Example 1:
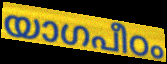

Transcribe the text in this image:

യാഗപീഠം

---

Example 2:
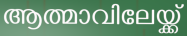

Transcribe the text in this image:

ആത്മാവിലേയ്ക്ക്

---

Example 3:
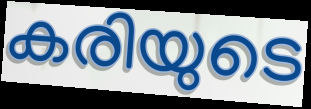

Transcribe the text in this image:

കരിയുടെ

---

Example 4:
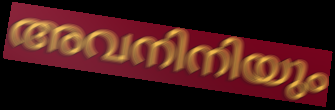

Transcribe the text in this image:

അവനിനിയും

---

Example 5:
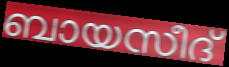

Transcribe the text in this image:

ബായസീദ്